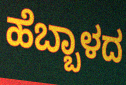
ಹೆಬ್ಬಾಳದ